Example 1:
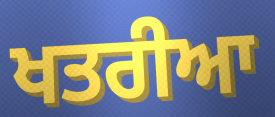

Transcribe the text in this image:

ਖਤਰੀਆ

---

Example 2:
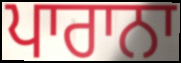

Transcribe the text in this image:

ਪਾਰਾਨਾ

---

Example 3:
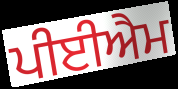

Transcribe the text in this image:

ਪੀਈਐਮ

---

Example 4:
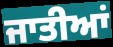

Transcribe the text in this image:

ਜਾਤੀਆਂ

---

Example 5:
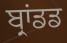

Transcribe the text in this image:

ਬ੍ਰਾਂਡਡ